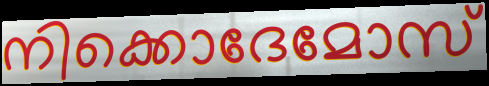
നിക്കൊദേമോസ്